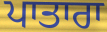
ਪਾਤਾਰਾ